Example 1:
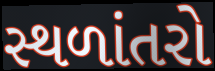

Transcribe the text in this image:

સ્થળાંતરો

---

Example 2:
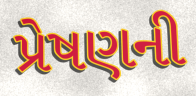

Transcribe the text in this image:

પ્રેષણની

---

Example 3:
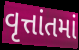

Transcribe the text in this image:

વૃત્તાંતમાં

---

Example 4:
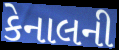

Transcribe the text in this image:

કેનાલની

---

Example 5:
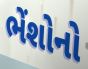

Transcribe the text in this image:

ભેંશોનો